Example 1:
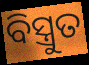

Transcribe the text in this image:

ବିସ୍ତ୍ରୁତ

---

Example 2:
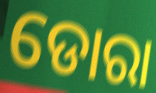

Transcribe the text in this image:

ଡୋରା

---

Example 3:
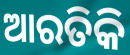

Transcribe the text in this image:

ଆରତିକି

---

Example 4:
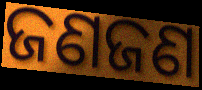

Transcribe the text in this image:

ଜଣଜଣ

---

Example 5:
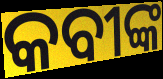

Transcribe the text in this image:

କବୀଙ୍କ